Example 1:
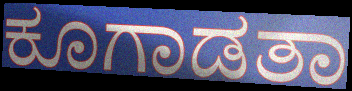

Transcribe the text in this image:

ಕೂಗಾಡತಾ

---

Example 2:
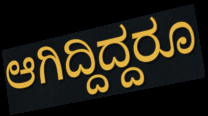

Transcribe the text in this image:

ಆಗಿದ್ದಿದ್ದರೂ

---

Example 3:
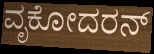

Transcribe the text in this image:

ವೃಕೋದರನ್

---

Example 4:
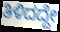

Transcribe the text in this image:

ತಿಳಿದದ್ದೇ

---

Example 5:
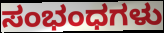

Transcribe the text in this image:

ಸಂಭಂಧಗಳು